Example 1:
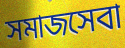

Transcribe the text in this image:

সমাজসেবা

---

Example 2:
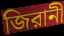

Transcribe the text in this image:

জিরানী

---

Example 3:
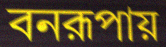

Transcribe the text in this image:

বনরূপায়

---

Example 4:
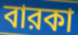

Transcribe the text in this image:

বারকা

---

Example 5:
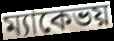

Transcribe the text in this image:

ম্যাকেভয়